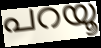
പറയൂ